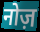
नोज़